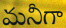
మనీగా